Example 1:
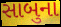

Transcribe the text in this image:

સાબુના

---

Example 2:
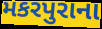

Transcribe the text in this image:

મકરપુરાના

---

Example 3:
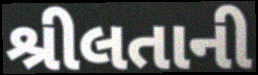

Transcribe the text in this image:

શ્રીલતાની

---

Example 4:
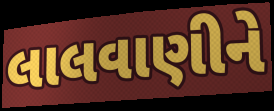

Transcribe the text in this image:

લાલવાણીને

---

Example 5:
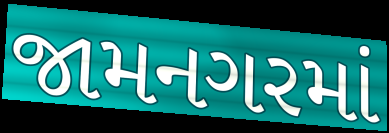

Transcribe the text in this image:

જામનગરમાં